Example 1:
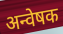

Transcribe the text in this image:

अन्वेषक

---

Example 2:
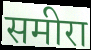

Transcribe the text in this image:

समीरा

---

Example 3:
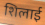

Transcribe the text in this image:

शिलाई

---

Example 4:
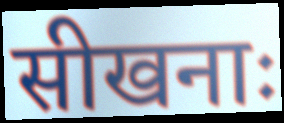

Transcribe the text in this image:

सीखनाः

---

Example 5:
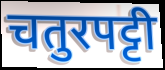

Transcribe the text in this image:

चतुरपट्टी